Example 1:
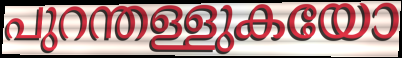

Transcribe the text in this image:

പുറന്തള്ളുകയോ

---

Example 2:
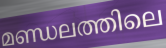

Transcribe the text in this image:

മണ്ഡലത്തിലെ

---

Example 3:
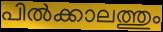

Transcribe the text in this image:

പിൽക്കാലത്തും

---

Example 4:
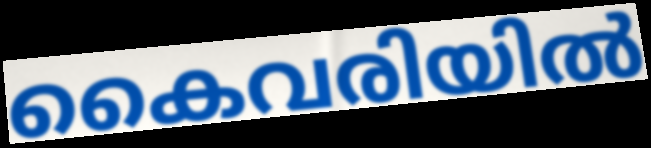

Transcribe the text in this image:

കൈവരിയിൽ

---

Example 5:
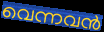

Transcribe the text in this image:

വെന്നവൻ